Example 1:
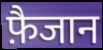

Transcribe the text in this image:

फ़ैजान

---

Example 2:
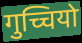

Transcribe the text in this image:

गुच्चियो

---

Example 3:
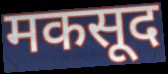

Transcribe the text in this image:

मकसूद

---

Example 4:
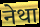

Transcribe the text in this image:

नेथा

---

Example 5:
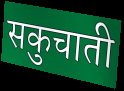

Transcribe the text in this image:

सकुचाती